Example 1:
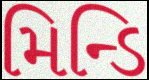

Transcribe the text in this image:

મિન્ડિ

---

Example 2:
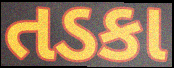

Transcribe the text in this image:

તડકા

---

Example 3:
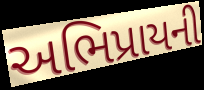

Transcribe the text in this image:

અભિપ્રાયની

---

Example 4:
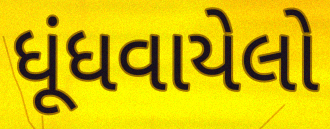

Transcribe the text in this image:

ધૂંધવાયેલો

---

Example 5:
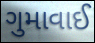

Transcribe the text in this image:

ગુમાવાઈ